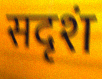
सदृशं